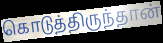
கொடுத்திருந்தான்